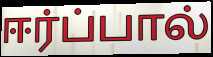
ஈர்ப்பால்